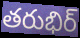
తరుభిర్